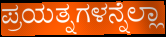
ಪ್ರಯತ್ನಗಳನ್ನೆಲ್ಲಾ